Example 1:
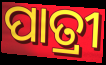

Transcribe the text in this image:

ପାତ୍ରୀ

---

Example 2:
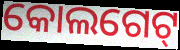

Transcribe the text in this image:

କୋଲଗେଟ୍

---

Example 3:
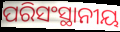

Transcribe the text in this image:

ପରିସଂସ୍ଥାନୀୟ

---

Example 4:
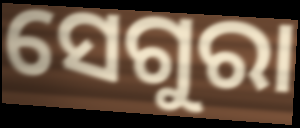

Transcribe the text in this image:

ସେଗୁରା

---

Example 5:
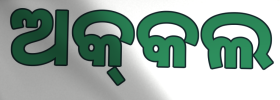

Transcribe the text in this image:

ଅକ୍‌କଲ